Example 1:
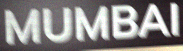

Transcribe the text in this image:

MUMBAI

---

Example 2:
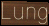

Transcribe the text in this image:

Lung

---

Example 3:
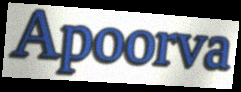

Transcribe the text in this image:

Apoorva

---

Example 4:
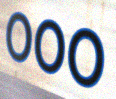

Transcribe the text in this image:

ooo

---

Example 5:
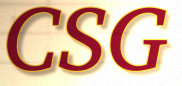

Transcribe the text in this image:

CSG